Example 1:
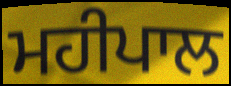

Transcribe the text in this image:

ਮਹੀਪਾਲ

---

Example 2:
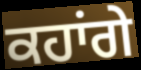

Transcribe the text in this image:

ਕਹਾਂਗੇ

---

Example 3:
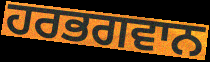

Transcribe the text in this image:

ਹਰਭਗਵਾਨ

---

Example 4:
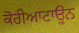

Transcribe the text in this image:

ਕੋਰੀਆਟਾਊਨ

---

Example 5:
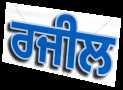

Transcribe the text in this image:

ਰਜੀਲ